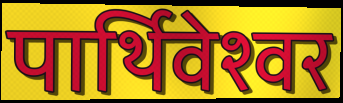
पार्थिवेश्वर